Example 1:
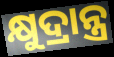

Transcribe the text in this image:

କ୍ଷୁଦ୍ରାନ୍ତ୍ର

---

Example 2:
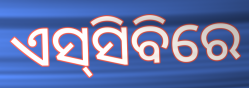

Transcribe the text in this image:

ଏସ୍‌ସିବିରେ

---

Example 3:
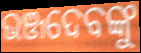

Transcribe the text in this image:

ଭଞ୍ଜଦେବଙ୍କୁ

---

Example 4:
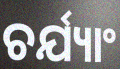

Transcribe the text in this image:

ଚର୍ଯ୍ୟାଂ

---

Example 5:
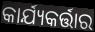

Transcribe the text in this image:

କାର୍ଯ୍ୟକର୍ତ୍ତାର